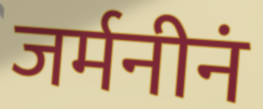
जर्मनीनं